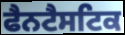
ਫੈਨਟੈਸਟਿਕ